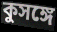
কুসঙ্গে